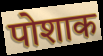
पोशाक